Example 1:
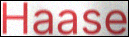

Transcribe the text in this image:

Haase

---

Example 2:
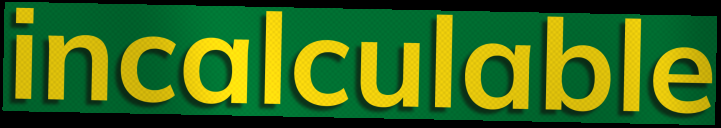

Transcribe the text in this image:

incalculable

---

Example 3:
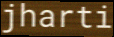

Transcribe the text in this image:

jharti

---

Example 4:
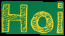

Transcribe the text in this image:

Hoi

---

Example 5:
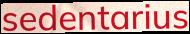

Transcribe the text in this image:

sedentarius